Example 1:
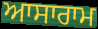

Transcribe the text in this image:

ਆਸਾਰਾਮ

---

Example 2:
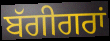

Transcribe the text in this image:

ਬੱਗੀਗਰਾਂ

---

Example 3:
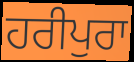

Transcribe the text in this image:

ਹਰੀਪੁਰਾ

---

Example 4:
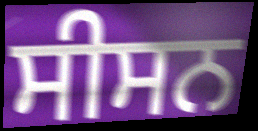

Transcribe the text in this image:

ਸੀਸਨ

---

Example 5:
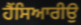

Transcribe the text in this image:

ਹੈਂਸਿਆਰੀਉ